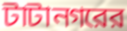
টাটানগরের